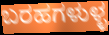
ಬರಹಗಳುಳ್ಳ